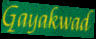
Gayakwad